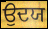
ਉਦਯ